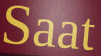
Saat